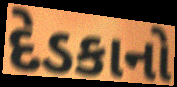
દેડકાનો